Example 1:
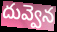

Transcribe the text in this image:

దువ్వెన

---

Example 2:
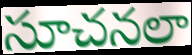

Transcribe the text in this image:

సూచనలా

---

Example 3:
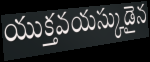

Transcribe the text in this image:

యుక్తవయస్కుడైన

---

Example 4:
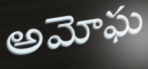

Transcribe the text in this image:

అమోఘ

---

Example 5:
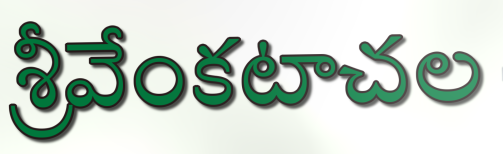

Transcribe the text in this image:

శ్రీవేంకటాచల